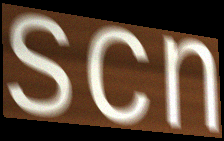
scn